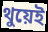
থুয়েই